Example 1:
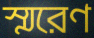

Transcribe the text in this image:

স্মরেণ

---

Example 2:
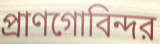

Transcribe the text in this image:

প্রাণগোবিন্দর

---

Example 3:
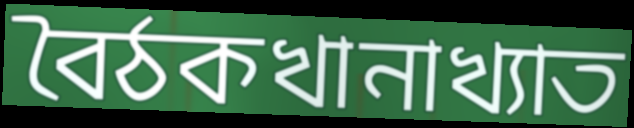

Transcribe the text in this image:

বৈঠকখানাখ্যাত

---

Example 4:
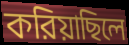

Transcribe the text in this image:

করিয়াছিলে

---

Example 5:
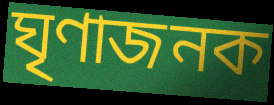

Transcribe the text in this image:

ঘৃণাজনক